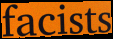
facists